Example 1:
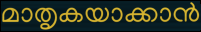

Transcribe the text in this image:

മാതൃകയാക്കാൻ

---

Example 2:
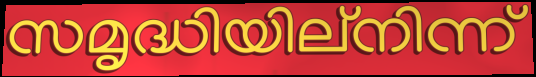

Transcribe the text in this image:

സമൃദ്ധിയില്നിന്ന്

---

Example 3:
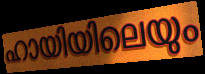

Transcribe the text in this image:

ഹായിയിലെയും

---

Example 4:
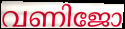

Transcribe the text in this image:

വണിജോ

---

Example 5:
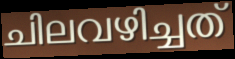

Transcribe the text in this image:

ചിലവഴിച്ചത്